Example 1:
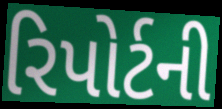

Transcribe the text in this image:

રિપોર્ટની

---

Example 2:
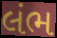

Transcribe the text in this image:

લંભ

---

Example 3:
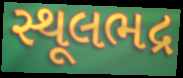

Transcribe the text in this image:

સ્થૂલભદ્ર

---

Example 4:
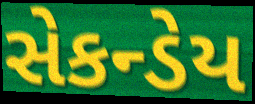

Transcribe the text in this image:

સેકન્ડેય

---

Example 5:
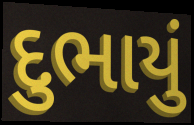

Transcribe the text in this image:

દુભાયું